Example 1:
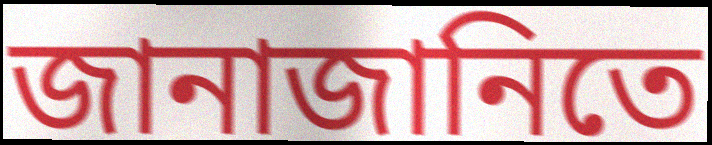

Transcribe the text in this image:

জানাজানিতে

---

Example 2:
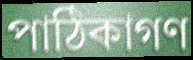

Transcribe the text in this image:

পাঠিকাগণ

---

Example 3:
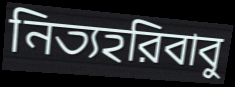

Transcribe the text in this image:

নিত্যহরিবাবু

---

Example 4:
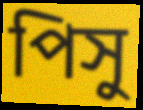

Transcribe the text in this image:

পিসু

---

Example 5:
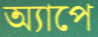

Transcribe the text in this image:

অ্যাপে